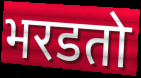
भरडतो